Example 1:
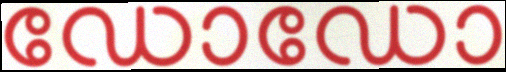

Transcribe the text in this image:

ഡോഡോ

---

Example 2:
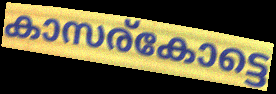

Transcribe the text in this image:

കാസര്കോട്ടെ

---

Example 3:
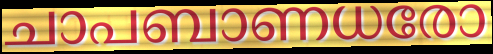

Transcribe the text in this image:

ചാപബാണധരോ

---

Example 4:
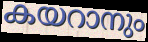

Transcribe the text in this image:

കയറാനും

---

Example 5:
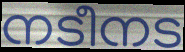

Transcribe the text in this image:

നടീനട